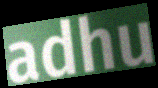
adhu